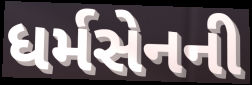
ધર્મસેનની